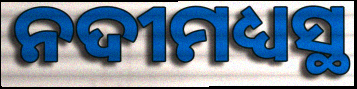
ନଦୀମଧ୍ୟସ୍ଥ